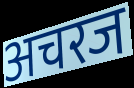
अचरज